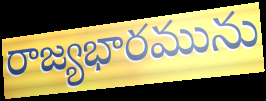
రాజ్యభారమును